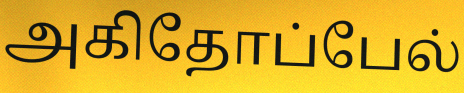
அகிதோப்பேல்